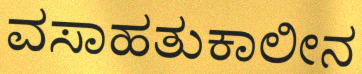
ವಸಾಹತುಕಾಲೀನ